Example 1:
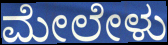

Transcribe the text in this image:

ಮೇಲೇಳು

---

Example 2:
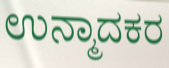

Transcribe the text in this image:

ಉನ್ಮಾದಕರ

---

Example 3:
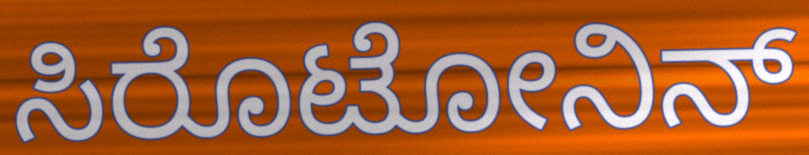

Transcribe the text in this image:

ಸಿರೊಟೋನಿನ್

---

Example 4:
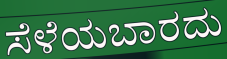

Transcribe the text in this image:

ಸೆಳೆಯಬಾರದು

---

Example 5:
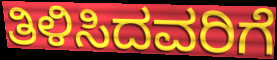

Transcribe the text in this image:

ತಿಳಿಸಿದವರಿಗೆ